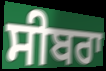
ਸੀਬਰਾ